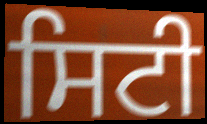
ਸਿਟੀ